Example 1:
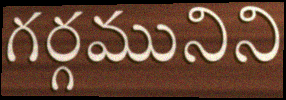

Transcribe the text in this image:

గర్గమునిని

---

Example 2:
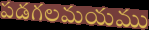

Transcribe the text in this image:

పడగలమయము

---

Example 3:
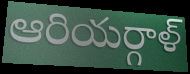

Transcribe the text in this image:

ఆరియర్గాళ్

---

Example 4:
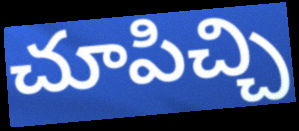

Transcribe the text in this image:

చూపిచ్చి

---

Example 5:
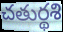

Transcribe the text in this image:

చతుర్థశి